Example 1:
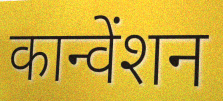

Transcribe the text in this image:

कान्वेंशन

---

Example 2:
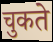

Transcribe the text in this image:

चुकते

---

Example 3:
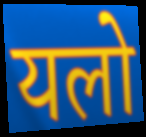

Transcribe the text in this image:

यलो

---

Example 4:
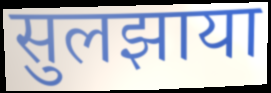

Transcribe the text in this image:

सुलझाया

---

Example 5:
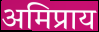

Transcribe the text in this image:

अमिप्राय